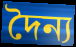
দৈন্য